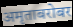
अमृताबरोबर